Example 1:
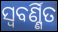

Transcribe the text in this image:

ସ୍ୱବର୍ଣ୍ଣିତ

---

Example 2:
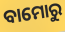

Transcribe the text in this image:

ବାମୋରୁ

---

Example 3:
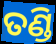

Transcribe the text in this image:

ତଣ୍ଡି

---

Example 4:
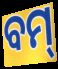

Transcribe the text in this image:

ବମ୍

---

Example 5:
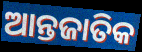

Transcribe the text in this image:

ଆନ୍ତଜାତିକ